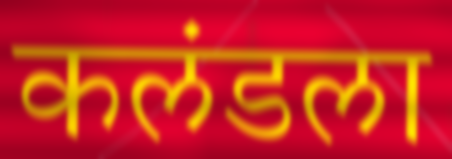
कलंडला